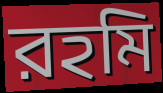
রহমি